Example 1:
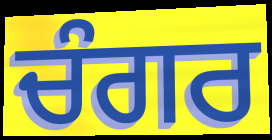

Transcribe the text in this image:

ਚੰਗਰ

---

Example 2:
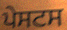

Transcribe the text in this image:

ਪੇਸਟਸ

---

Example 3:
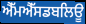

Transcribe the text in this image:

ਐੱਮਐੱਸਡਬਲਿਊ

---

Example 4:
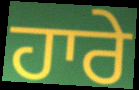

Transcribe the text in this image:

ਹਾਰੇ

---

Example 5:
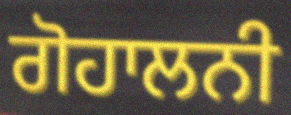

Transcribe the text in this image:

ਗੋਹਾਲਨੀ